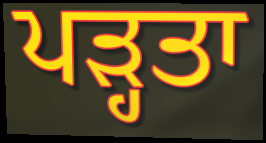
ਪੜ੍ਹਤਾ